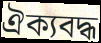
ঐক্যবদ্ধ